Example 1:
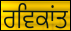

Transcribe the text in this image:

ਰਵਿਕਾਂਤ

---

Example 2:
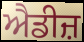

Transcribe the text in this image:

ਐਡੀਜ਼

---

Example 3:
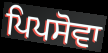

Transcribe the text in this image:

ਪਿਪਸੋਵਾ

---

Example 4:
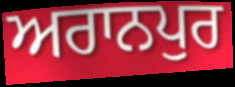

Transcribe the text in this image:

ਅਰਾਨਪੁਰ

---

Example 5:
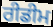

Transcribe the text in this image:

ਰੀਡੀਮ